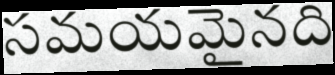
సమయమైనది